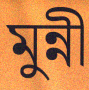
মুন্নী